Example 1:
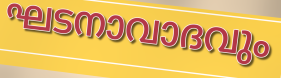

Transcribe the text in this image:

ഘടനാവാദവും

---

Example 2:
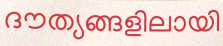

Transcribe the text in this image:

ദൗത്യങ്ങളിലായി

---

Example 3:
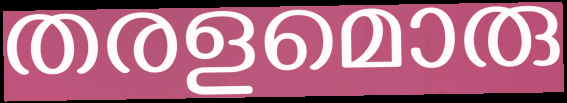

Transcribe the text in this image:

തരളമൊരു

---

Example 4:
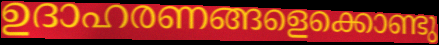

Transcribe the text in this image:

ഉദാഹരണങ്ങളെക്കൊണ്ടു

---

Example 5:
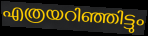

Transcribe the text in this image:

എത്രയറിഞ്ഞിട്ടും